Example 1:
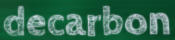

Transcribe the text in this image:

decarbon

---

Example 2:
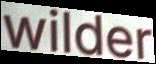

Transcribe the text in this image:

wilder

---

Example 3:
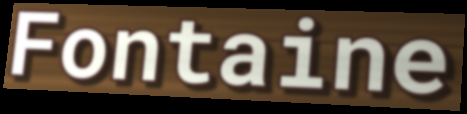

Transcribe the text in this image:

Fontaine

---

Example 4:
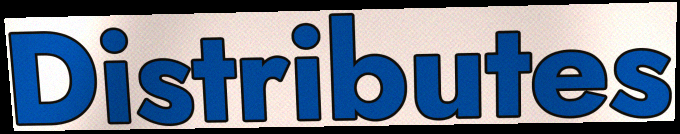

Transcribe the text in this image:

Distributes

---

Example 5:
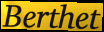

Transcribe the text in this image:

Berthet